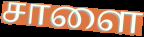
சாளை